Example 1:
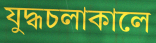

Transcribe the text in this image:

যুদ্ধচলাকালে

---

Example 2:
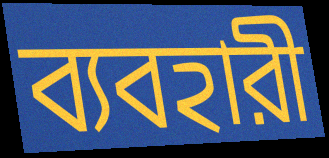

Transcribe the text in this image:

ব্যবহারী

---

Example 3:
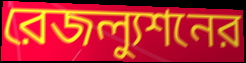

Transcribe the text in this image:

রেজল্যুশনের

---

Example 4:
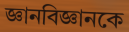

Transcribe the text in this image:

জ্ঞানবিজ্ঞানকে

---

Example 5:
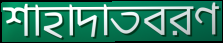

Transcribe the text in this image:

শাহাদাতবরণ